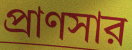
প্রাণসার